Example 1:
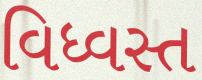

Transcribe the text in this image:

વિધ્વસ્ત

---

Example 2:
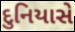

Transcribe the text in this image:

દુનિયાસે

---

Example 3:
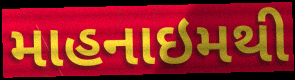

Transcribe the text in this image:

માહનાઇમથી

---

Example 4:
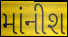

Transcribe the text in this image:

માંનીશ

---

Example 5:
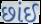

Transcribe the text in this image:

છાંઈ